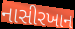
નાસીરખાન